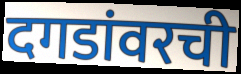
दगडांवरची